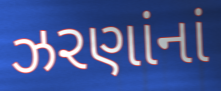
ઝરણાંનાં